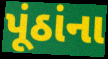
પૂંઠાંના